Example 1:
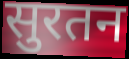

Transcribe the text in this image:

सुरतन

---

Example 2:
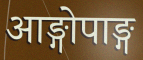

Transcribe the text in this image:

आङ्गोपाङ्ग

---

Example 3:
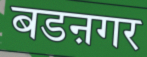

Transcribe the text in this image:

बडऩगर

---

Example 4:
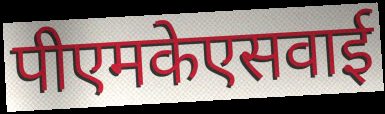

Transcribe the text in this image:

पीएमकेएसवाई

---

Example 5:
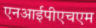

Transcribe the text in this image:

एनआईपीएचएम